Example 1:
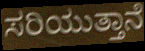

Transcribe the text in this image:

ಸರಿಯುತ್ತಾನೆ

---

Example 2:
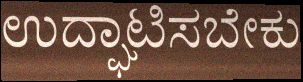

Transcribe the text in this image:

ಉದ್ಘಾಟಿಸಬೇಕು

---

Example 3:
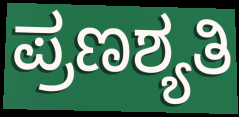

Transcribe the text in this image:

ಪ್ರಣಶ್ಯತಿ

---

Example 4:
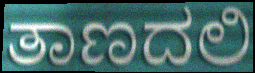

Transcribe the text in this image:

ತಾಣದಲಿ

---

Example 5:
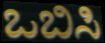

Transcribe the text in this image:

ಒಬಿಸಿ